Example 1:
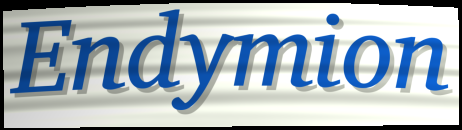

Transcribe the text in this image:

Endymion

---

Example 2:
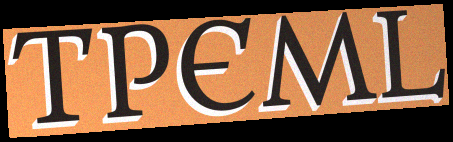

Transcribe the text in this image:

TPEML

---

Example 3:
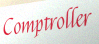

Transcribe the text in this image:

Comptroller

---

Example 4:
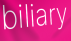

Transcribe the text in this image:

biliary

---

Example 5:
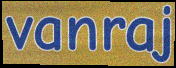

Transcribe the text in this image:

vanraj